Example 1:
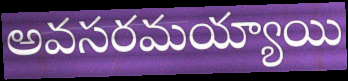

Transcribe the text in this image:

అవసరమయ్యాయి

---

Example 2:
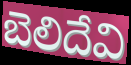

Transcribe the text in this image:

బెలిదేవి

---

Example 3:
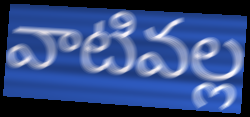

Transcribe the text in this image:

వాటివల్ల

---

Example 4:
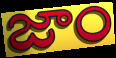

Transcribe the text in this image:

జాం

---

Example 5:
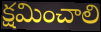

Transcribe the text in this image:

క్షమించాలి